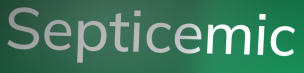
Septicemic